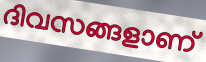
ദിവസങ്ങളാണ്